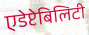
एडेप्टेबिलिटी